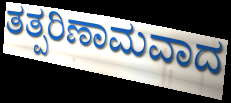
ತತ್ಪರಿಣಾಮವಾದ